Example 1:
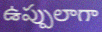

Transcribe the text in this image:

ఉప్పులాగా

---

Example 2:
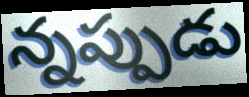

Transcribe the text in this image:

న్నప్పుడు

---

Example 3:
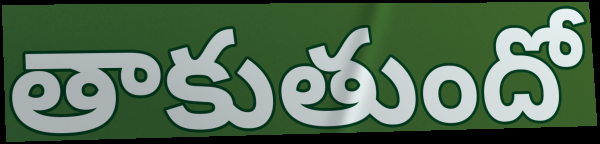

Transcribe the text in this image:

తాకుతుందో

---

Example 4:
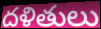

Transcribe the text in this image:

దళితులు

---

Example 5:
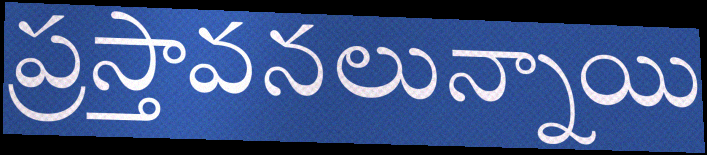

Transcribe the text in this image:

ప్రస్తావనలున్నాయి